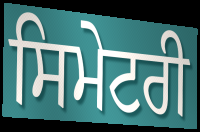
ਸਿਮੇਟਰੀ